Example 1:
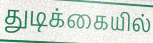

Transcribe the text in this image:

துடிக்கையில்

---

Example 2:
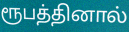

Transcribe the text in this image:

ரூபத்தினால்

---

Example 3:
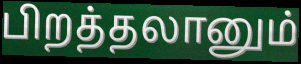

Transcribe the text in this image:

பிறத்தலானும்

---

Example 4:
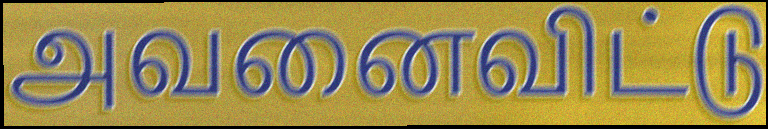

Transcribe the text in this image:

அவனைவிட்டு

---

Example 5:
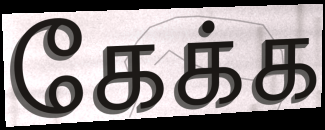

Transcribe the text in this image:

கேக்க